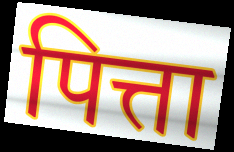
पित्ता